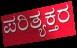
ಪರಿತ್ಯಕ್ತರ